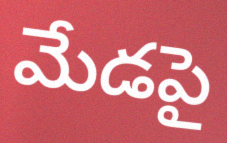
మేడపై